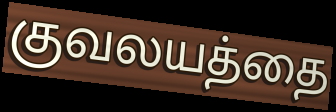
குவலயத்தை